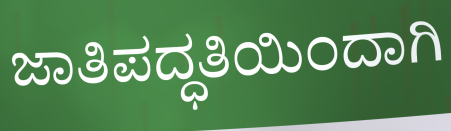
ಜಾತಿಪದ್ಧತಿಯಿಂದಾಗಿ